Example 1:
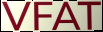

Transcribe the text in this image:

VFAT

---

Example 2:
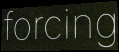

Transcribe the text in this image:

forcing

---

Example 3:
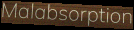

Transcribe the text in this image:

Malabsorption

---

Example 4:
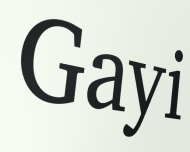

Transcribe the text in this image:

Gayi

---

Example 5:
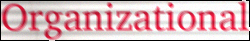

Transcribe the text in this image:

Organizational